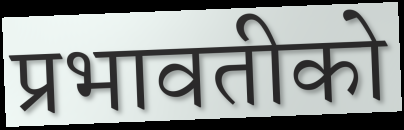
प्रभावतीको